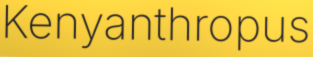
Kenyanthropus